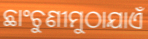
ଛାଂଚୁଣୀମୁଠାଯାଏଁ